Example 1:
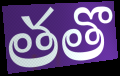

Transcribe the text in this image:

తతొ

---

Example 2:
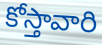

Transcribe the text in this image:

కోస్తావారి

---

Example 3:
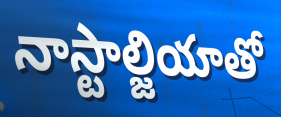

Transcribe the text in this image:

నాస్టాల్జియాతో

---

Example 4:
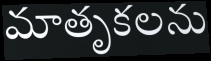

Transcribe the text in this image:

మాతృకలను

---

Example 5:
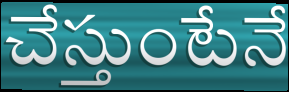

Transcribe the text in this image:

చేస్తుంటేనే